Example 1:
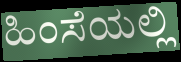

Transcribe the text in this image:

ಹಿಂಸೆಯಲ್ಲಿ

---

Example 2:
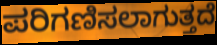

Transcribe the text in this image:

ಪರಿಗಣಿಸಲಾಗುತ್ತದೆ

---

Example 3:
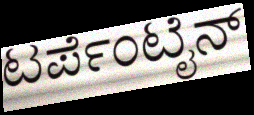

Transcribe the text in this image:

ಟರ್ಪೆಂಟೈನ್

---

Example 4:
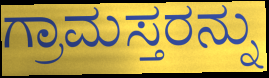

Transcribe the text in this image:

ಗ್ರಾಮಸ್ತರನ್ನು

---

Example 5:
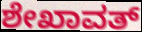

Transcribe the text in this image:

ಶೇಖಾವತ್